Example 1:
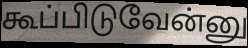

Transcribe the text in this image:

கூப்பிடுவேன்னு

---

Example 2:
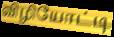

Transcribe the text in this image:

விழியோட்டி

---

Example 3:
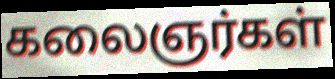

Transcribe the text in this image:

கலைஞர்கள்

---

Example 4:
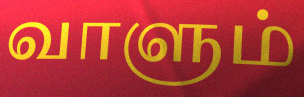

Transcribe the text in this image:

வாளும்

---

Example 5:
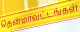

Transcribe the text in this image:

தென்மாவட்டங்கள்